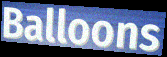
Balloons